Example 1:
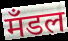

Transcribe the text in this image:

मँडल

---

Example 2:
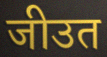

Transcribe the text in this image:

जीउत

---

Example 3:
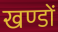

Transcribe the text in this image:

खण्डों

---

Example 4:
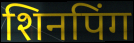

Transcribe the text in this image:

शिनपिंग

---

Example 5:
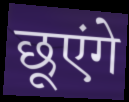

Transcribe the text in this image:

छूएंगे